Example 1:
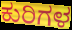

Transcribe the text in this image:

ಕುರಿಗಳ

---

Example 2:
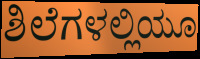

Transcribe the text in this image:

ಶಿಲೆಗಳಲ್ಲಿಯೂ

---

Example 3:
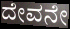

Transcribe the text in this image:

ದೇವನೇ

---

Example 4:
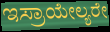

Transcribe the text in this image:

ಇಸ್ರಾಯೇಲ್ಯರೇ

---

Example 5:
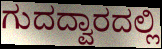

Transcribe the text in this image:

ಗುದದ್ವಾರದಲ್ಲಿ